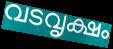
വടവൃക്ഷം